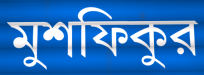
মুশফিকুর